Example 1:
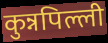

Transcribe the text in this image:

कुन्नपिल्ली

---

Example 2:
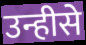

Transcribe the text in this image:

उन्हीसे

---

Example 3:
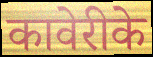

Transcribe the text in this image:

कावेरीके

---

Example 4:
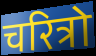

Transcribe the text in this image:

चरित्रो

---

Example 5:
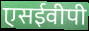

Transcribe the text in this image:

एसईवीपी